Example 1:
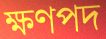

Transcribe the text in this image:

ক্ষণপদ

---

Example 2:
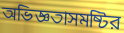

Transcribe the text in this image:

অভিজ্ঞতাসমষ্টির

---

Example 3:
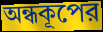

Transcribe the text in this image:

অন্ধকূপের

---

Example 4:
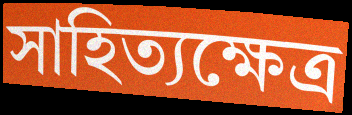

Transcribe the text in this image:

সাহিত্যক্ষেত্র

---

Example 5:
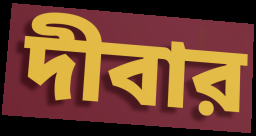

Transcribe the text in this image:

দীবার